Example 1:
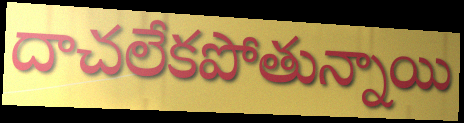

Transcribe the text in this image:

దాచలేకపోతున్నాయి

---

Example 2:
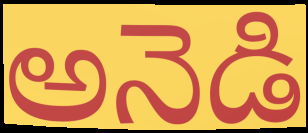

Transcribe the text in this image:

అనెడి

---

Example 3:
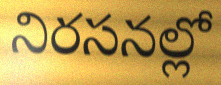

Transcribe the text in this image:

నిరసనల్లో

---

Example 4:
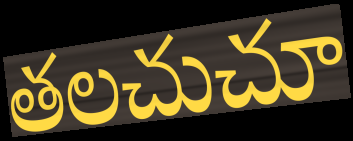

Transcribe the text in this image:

తలచుచూ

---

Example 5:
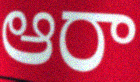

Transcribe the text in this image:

ఆరా